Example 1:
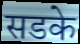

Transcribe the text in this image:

सडके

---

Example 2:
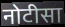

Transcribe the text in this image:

नोटीसा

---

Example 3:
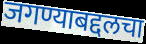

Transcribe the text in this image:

जगण्याबद्दलचा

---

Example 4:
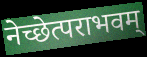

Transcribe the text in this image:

नेच्छेत्पराभवम्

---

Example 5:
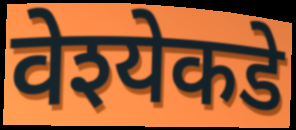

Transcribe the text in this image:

वेश्येकडे